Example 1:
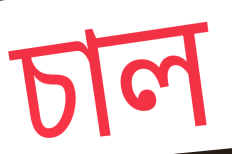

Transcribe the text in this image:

চাল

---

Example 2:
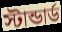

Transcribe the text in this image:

স্টান্ডার্ড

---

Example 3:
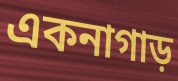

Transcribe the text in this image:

একনাগাড়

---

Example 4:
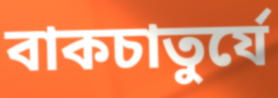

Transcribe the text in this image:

বাকচাতুর্যে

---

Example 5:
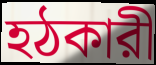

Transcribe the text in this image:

হঠকারী